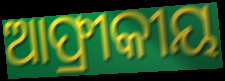
ଆଫ୍ରୀକୀୟ